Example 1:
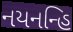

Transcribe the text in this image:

નયનન્હિ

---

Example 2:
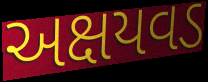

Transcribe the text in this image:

અક્ષયવડ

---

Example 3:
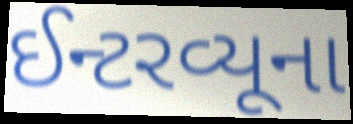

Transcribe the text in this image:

ઈન્ટરવ્યૂના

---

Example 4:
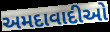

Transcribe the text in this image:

અમદાવાદીઓ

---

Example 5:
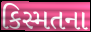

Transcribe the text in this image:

કિસ્મતના